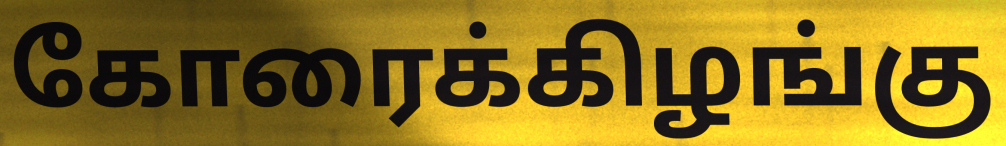
கோரைக்கிழங்கு